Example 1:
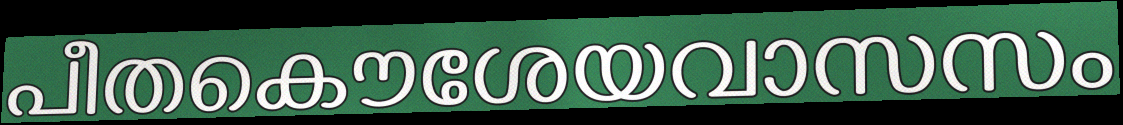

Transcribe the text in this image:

പീതകൌശേയവാസസം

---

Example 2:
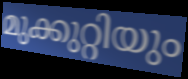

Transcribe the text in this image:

മുക്കുറ്റിയും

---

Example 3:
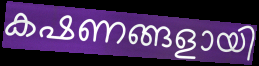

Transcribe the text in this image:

കഷണങ്ങളായി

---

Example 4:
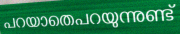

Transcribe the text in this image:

പറയാതെപറയുന്നുണ്ട്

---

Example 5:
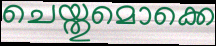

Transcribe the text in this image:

ചെയ്തുമൊക്കെ